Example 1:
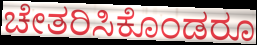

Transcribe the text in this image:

ಚೇತರಿಸಿಕೊಂಡರೂ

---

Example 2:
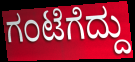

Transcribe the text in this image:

ಗಂಟೆಗೆದ್ದು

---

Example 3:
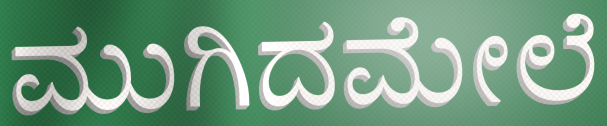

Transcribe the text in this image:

ಮುಗಿದಮೇಲೆ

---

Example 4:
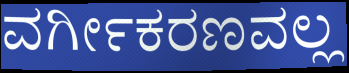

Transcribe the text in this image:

ವರ್ಗೀಕರಣವಲ್ಲ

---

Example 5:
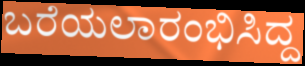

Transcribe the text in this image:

ಬರೆಯಲಾರಂಭಿಸಿದ್ದ